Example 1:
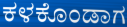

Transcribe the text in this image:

ಕಳಕೊಂಡಾಗ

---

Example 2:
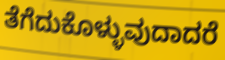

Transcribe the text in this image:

ತೆಗೆದುಕೊಳ್ಳುವುದಾದರೆ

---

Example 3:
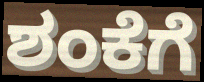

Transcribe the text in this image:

ಶಂಕೆಗೆ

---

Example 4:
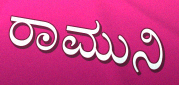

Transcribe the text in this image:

ರಾಮುನಿ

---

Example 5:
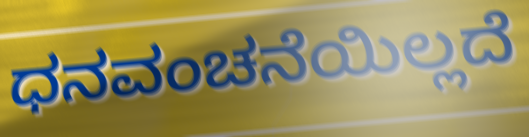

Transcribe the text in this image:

ಧನವಂಚನೆಯಿಲ್ಲದೆ